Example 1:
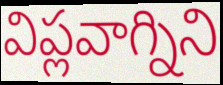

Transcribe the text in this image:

విప్లవాగ్నిని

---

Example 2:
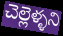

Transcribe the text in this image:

చెల్లెళ్ళని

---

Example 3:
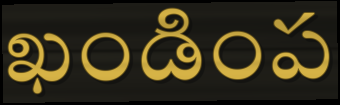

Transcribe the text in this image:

ఖండింప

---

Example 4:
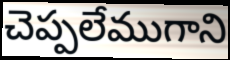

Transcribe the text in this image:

చెప్పలేముగాని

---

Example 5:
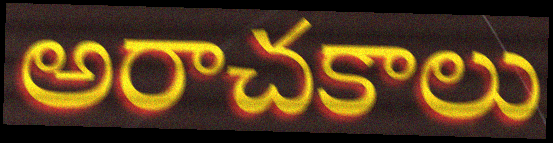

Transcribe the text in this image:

అరాచకాలు